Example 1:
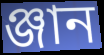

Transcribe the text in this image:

ঞ্জান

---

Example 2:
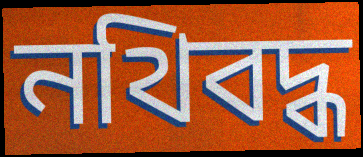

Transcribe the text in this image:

নথিবদ্ধ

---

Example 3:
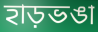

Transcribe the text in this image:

হাড়ভঙা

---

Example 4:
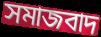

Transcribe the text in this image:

সমাজবাদ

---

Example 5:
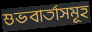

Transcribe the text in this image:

শুভবাৰ্তাসমূহ